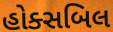
હોક્સબિલ